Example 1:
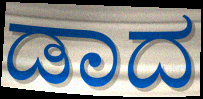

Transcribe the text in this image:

ಡಾದ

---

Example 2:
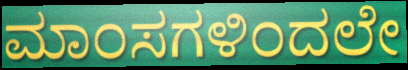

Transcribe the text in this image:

ಮಾಂಸಗಳಿಂದಲೇ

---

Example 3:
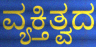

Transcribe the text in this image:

ವ್ಯಕ್ತಿತ್ವದ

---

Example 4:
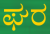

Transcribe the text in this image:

ಘರ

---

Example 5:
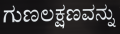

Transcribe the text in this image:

ಗುಣಲಕ್ಷಣವನ್ನು